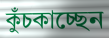
কুঁচকাচ্ছেন